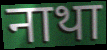
नाथा